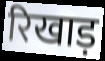
रिखाड़